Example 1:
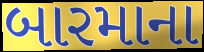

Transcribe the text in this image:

બારમાના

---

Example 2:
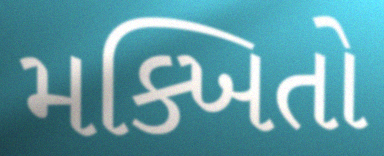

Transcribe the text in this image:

મક્ખિતો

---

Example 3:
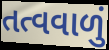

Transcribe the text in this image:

તત્વવાળું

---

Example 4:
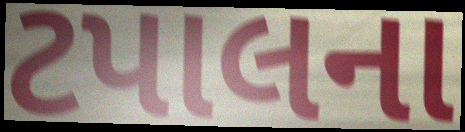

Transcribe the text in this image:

ટપાલના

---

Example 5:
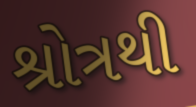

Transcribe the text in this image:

શ્રોત્રથી